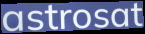
astrosat